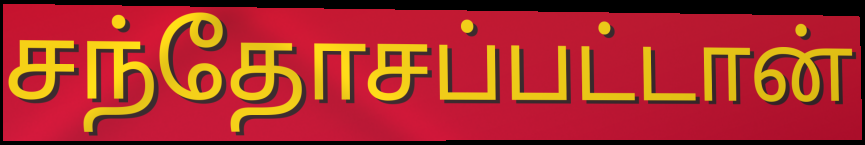
சந்தோசப்பட்டான்